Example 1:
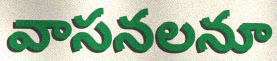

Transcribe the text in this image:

వాసనలనూ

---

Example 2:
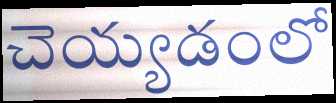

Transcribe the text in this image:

చెయ్యడంలో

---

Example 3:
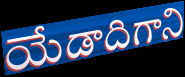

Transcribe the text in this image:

యేడాదిగాని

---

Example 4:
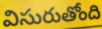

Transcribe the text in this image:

విసురుతోంది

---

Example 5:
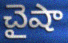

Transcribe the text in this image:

చైషా